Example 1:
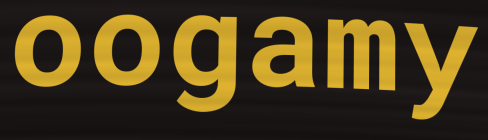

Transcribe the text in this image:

oogamy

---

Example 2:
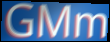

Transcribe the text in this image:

GMm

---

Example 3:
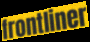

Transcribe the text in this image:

frontliner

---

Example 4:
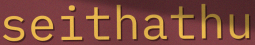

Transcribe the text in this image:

seithathu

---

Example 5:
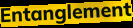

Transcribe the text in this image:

Entanglement